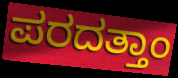
ಪರದತ್ತಾಂ